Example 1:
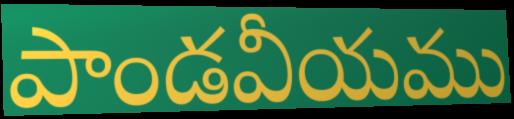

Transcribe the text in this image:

పాండవీయము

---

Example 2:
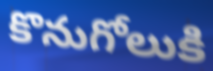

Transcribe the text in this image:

కొనుగోలుకి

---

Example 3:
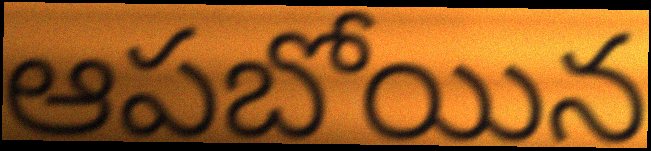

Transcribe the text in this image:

ఆపబోయిన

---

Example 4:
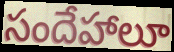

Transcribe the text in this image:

సందేహాలూ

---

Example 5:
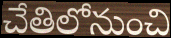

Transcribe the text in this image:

చేతిలోనుంచి